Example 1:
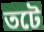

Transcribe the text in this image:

তটে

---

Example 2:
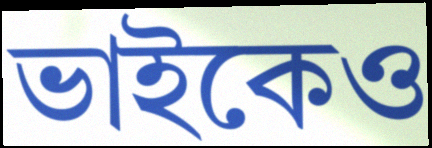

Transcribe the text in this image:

ভাইকেও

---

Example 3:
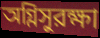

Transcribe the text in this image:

অগ্নিসুরক্ষা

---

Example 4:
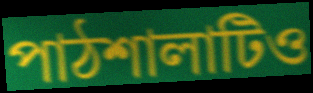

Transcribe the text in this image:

পাঠশালাটিও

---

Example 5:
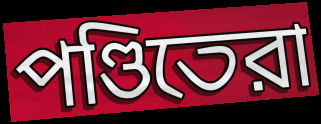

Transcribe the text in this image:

পণ্ডিতেরা